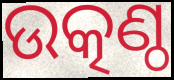
ଉତ୍କଣ୍ଠ